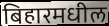
बिहारमधील